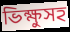
ভিক্ষুসহ